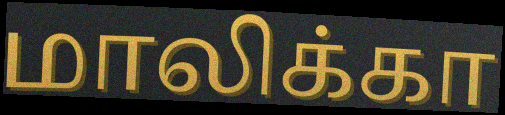
மாலிக்கா